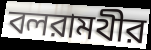
বলরামথীর